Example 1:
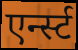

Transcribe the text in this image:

एर्न्स्ट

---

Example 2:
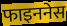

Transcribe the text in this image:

फाइननेस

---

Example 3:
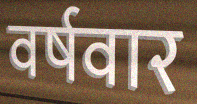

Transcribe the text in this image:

वर्षवार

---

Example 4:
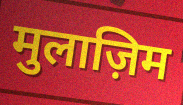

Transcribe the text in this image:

मुलाज़िम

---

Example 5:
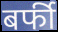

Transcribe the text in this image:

बर्फी